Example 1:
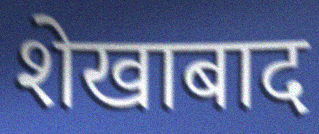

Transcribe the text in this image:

शेखाबाद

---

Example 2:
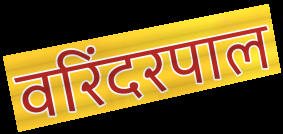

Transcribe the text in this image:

वरिंदरपाल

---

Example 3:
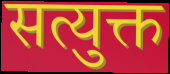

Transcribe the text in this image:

सत्युक्त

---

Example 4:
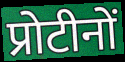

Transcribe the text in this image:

प्रोटीनों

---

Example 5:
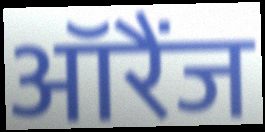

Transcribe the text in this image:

ऑरैंज